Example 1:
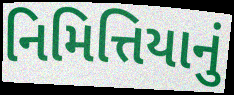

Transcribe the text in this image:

નિમિત્તિયાનું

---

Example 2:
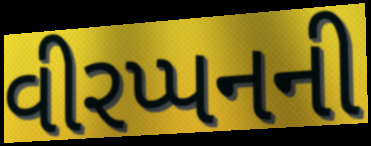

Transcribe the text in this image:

વીરપ્પનની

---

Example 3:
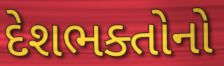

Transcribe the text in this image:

દેશભક્તોનો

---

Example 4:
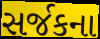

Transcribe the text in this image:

સર્જકના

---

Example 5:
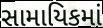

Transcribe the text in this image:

સામાયિકમાં